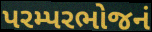
પરમ્પરભોજનં